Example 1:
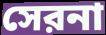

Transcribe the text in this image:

সেরনা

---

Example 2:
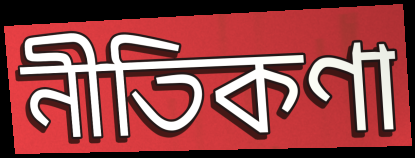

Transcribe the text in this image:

নীতিকণা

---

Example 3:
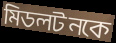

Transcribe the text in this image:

মিডলটনকে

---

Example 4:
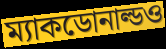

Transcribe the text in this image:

ম্যাকডোনাল্ডও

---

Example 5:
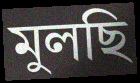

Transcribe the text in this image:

মুলছি